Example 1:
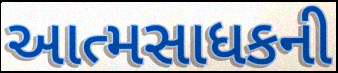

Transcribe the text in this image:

આત્મસાધકની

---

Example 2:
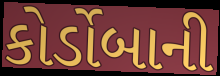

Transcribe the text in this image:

કોર્ડોબાની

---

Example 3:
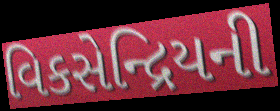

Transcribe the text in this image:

વિકસેન્દ્રિયની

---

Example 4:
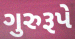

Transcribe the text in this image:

ગુરુરૂપે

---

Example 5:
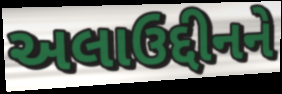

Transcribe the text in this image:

અલાઉદ્દીનને